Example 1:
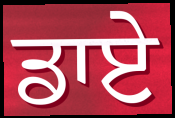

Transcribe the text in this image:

ਡਾਏ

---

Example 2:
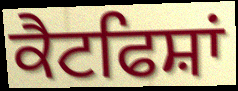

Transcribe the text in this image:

ਕੈਟਫਿਸ਼ਾਂ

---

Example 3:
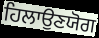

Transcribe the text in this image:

ਹਿਲਾਉਣਯੋਗ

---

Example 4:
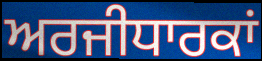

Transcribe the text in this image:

ਅਰਜੀਧਾਰਕਾਂ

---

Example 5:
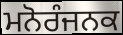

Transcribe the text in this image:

ਮਨੋਰੰਜਨਕ